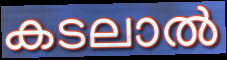
കടലാൽ